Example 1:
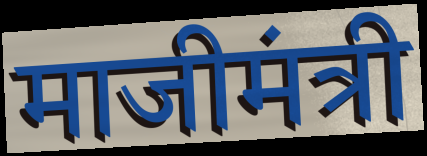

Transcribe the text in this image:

माजीमंत्री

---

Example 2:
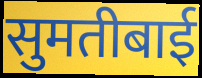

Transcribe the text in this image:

सुमतीबाई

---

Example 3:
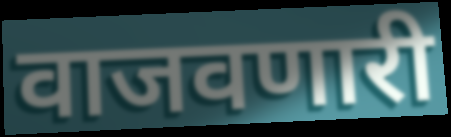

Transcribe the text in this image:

वाजवणारी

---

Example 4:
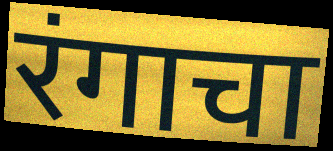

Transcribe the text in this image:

रंगाचा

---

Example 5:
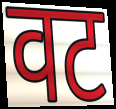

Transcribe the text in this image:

वट